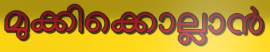
മുക്കിക്കൊല്ലാൻ